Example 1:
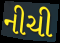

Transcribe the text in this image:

નીચી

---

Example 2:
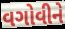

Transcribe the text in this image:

વગોવીને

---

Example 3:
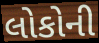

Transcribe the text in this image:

લોકોની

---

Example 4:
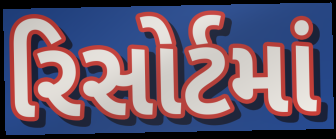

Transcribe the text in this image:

રિસોર્ટમાં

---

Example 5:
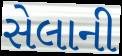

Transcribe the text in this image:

સેલાની